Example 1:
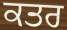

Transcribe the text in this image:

ਕਤਰ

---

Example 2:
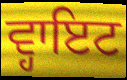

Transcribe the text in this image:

ਵ੍ਹਾਇਟ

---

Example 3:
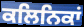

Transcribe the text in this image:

ਕਲਿਨਿਕਾਂ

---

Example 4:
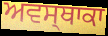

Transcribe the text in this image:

ਅਵਸ੍ਥਾਕਾ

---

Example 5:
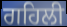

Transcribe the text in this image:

ਗਹਿਲੀ